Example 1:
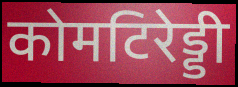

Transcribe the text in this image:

कोमटिरेड्डी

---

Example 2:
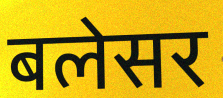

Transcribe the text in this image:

बलेसर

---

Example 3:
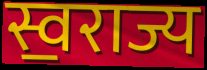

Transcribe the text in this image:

स्व॒राज्य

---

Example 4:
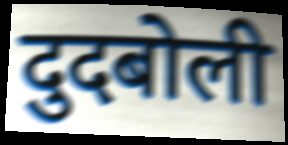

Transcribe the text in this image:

दुदबोली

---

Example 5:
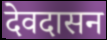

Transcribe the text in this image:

देवदासन